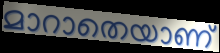
മാറാതെയാണ്